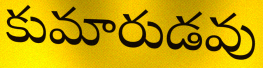
కుమారుడవు